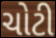
ચોટી